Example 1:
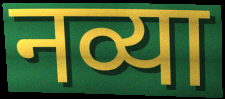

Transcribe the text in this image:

नव्या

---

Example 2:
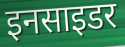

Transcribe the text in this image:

इनसाइडर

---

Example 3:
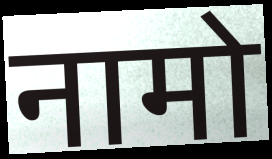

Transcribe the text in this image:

नामो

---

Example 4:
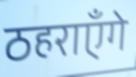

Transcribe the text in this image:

ठहराएँगे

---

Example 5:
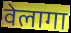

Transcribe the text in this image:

वेलागा